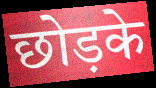
छोड़के